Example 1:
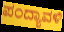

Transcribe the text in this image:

ಪಂದ್ಯಾವಳಿ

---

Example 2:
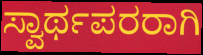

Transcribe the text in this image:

ಸ್ವಾರ್ಥಪರರಾಗಿ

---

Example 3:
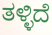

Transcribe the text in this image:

ತಳ್ಳಿದೆ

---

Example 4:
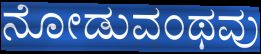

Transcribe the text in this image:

ನೋಡುವಂಥವು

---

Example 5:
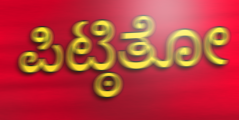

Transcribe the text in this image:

ಪಿಟ್ಠಿತೋ